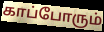
காப்போரும்